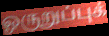
ஓருறுப்புக்